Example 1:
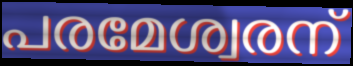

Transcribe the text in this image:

പരമേശ്വരന്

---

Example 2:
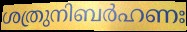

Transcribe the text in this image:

ശത്രുനിബർഹണഃ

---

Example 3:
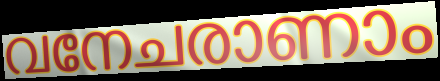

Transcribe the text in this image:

വനേചരാണാം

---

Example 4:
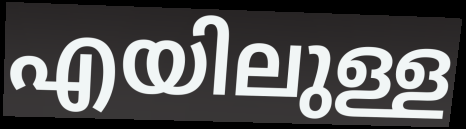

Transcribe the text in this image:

എയിലുള്ള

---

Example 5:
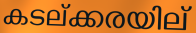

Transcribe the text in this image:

കടല്ക്കരയില്